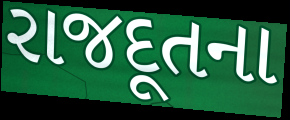
રાજદૂતના